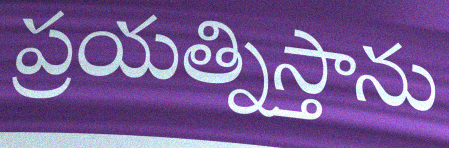
ప్రయత్నిస్తాను